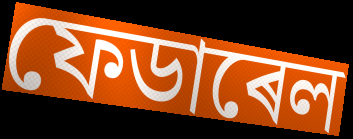
ফেডাৰেল